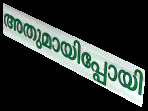
അതുമായിപ്പോയി